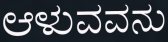
ಆಳುವವನು